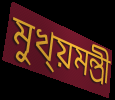
মুখ্য়মন্ত্রী